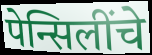
पेन्सिलींचे